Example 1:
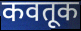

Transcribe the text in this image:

कवतूक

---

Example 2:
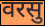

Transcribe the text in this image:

वरसु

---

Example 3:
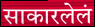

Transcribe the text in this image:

साकारलेलं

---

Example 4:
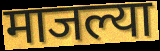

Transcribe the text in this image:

माजल्या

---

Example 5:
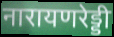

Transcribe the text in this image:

नारायणरेड्डी